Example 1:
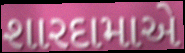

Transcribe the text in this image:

શારદામાએ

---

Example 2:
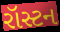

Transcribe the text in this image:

રૉસ્ટન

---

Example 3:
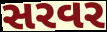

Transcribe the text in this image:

સરવર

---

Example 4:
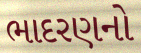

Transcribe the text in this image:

ભાદરણનો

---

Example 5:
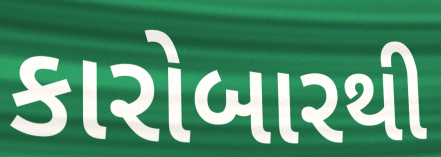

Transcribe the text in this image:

કારોબારથી